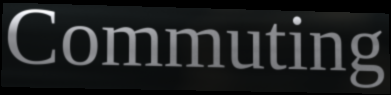
Commuting